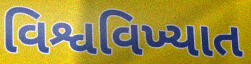
વિશ્વવિખ્યાત